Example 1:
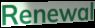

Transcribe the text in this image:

Renewal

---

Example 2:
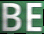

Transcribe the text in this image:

BE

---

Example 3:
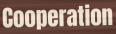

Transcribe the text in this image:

Cooperation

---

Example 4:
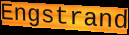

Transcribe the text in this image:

Engstrand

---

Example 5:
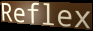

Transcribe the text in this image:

Reflex